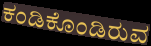
ಕಂಡಿಕೊಂಡಿರುವ